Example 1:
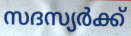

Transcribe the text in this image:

സദസ്യർക്ക്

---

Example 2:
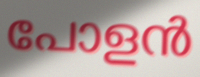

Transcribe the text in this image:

പോളൻ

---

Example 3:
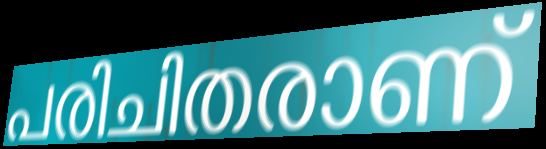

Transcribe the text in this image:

പരിചിതരാണ്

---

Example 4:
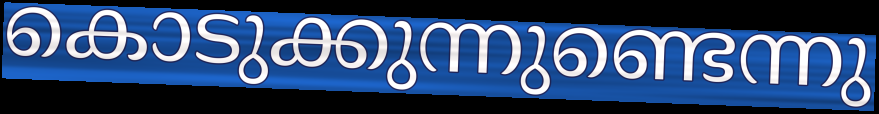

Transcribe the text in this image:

കൊടുക്കുന്നുണ്ടെന്നു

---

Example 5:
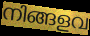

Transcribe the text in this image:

നിങ്ങളവ